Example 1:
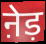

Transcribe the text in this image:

ऩेड़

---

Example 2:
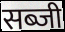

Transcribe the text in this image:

सब्जी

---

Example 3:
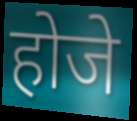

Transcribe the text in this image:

होजे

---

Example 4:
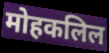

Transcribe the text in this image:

मोहकलिल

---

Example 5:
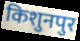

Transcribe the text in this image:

किशुनपुर